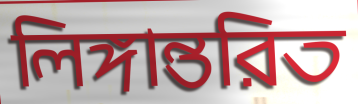
লিঙ্গান্তরিত